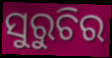
ସୁରୁଚିର